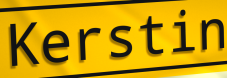
Kerstin